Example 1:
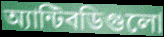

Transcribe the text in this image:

অ্যান্টিবডিগুলো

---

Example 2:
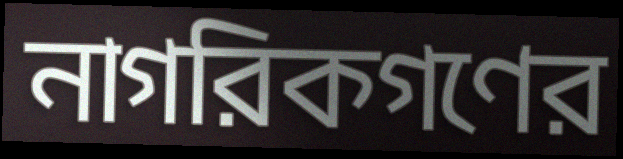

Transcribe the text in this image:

নাগরিকগণের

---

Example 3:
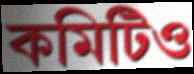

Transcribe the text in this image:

কমিটিও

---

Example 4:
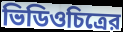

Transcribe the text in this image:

ভিডিওচিত্রের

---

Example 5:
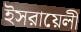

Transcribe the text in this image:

ইসরায়েলী